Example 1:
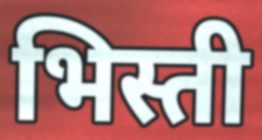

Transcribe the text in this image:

भिस्ती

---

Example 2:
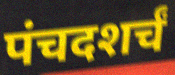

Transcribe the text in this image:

पंचदशर्चं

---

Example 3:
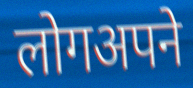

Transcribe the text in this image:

लोगअपने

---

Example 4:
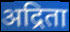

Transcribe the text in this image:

अद्रिता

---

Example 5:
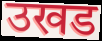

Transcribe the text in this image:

उखड